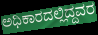
ಅಧಿಕಾರದಲ್ಲಿದ್ದವರ